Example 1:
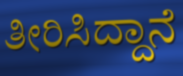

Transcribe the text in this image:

ತೀರಿಸಿದ್ದಾನೆ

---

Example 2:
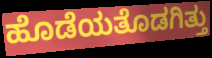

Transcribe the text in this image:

ಹೊಡೆಯತೊಡಗಿತ್ತು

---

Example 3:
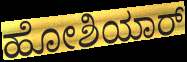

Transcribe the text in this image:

ಹೋಶಿಯಾರ್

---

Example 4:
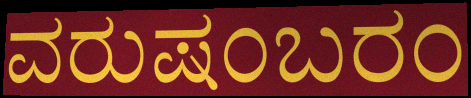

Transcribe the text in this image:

ವರುಷಂಬರಂ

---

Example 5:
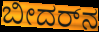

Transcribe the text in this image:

ಬೀದರ್‌ನ